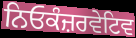
ਨਿਓਕੰਜ਼ਰਵੇਟਿਵ